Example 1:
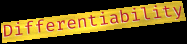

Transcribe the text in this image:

Differentiability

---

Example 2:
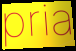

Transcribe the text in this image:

pria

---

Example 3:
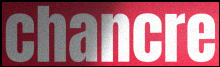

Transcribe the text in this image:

chancre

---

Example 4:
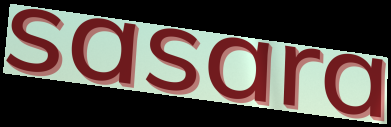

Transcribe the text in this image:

sasara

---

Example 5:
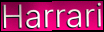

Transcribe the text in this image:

Harrari